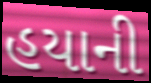
હયાની